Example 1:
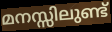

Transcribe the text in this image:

മനസ്സിലുണ്ട്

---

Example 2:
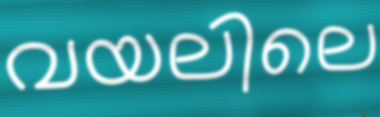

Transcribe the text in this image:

വയലിലെ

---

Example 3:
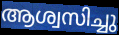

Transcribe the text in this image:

ആശ്വസിച്ചു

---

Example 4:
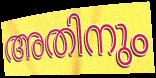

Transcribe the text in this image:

അതിനും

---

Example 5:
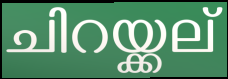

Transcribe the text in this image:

ചിറയ്ക്കല്